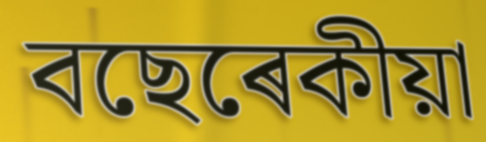
বছেৰেকীয়া